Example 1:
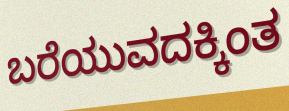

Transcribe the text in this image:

ಬರೆಯುವದಕ್ಕಿಂತ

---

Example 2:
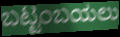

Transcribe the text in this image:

ಬಟ್ಟಂಬಯಲು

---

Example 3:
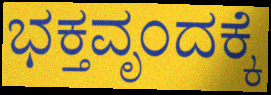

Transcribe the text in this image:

ಭಕ್ತವೃಂದಕ್ಕೆ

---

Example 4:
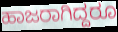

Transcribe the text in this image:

ಹಾಜರಾಗಿದ್ದರೂ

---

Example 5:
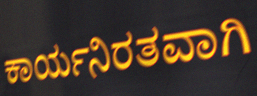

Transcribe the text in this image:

ಕಾರ್ಯನಿರತವಾಗಿ